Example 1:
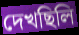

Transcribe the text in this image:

দেখছিলি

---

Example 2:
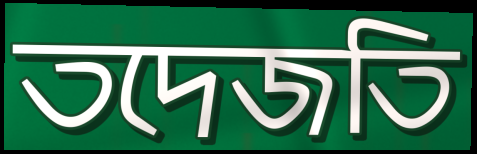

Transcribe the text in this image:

তদেজতি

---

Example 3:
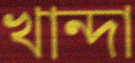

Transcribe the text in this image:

খান্দা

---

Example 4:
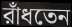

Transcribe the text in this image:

রাঁধতেন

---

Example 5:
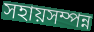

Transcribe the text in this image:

সহায়সম্পন্ন